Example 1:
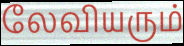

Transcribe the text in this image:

லேவியரும்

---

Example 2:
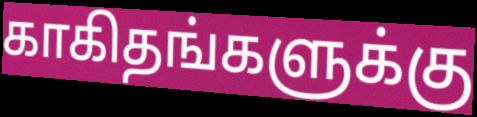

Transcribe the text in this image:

காகிதங்களுக்கு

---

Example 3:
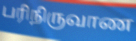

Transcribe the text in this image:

பரிநிருவாண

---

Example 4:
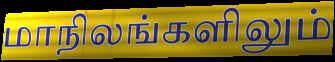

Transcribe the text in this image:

மாநிலங்களிலும்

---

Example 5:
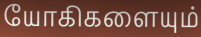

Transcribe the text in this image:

யோகிகளையும்